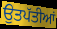
ਉਤਪੱਤੀਆਂ